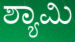
ಶ್ಯಾಮಿ